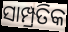
ସାମ୍ପ୍ରତିକ